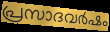
പ്രസാദവർഷം